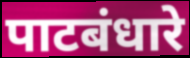
पाटबंधारे